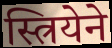
स्त्रियेने